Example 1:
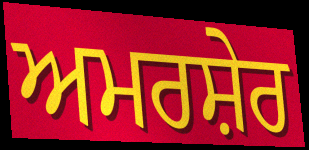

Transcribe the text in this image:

ਅਮਰਸ਼ੇਰ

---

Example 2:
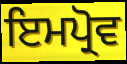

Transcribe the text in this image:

ਇਮਪ੍ਰੋਵ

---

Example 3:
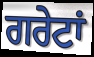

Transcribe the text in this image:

ਗਰੇਟਾਂ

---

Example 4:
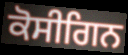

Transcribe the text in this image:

ਕੋਸੀਗਿਨ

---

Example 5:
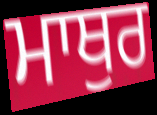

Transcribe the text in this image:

ਮਾਥੁਰ